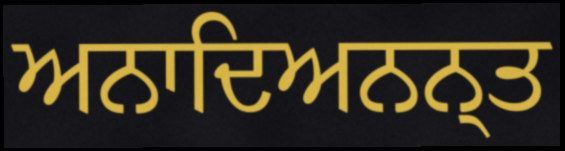
ਅਨਾਦਿਅਨਨ੍ਤ